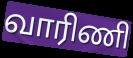
வாரிணி